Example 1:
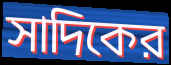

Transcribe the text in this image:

সাদিকের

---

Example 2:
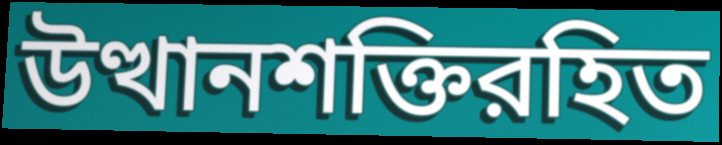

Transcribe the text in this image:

উত্থানশক্তিরহিত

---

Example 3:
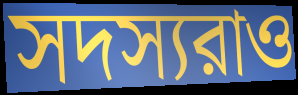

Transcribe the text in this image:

সদস্যরাও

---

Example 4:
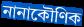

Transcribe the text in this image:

নানাকৌণিক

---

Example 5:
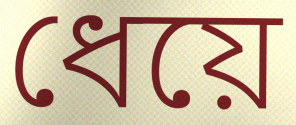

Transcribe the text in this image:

ধেয়ে